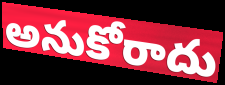
అనుకోరాదు